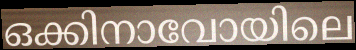
ഒക്കിനാവോയിലെ